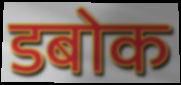
डबोक